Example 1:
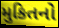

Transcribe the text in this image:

મુકિતનો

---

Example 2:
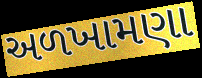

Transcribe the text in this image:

અળખામણા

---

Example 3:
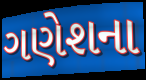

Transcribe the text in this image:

ગણેશના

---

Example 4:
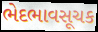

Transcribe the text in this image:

ભેદભાવસૂચક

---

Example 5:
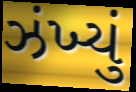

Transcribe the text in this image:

ઝંખ્યું